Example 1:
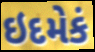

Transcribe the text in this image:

ઇદમેકં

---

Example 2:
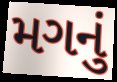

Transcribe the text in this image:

મગનું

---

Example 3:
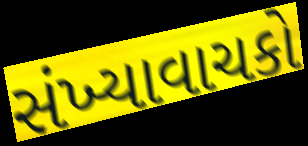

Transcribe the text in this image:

સંખ્યાવાચકો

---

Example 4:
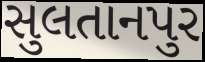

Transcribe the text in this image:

સુલતાનપુર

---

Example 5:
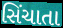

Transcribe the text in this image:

સિંચાતા